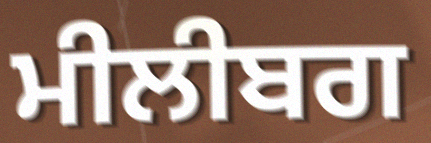
ਮੀਲੀਬਗ